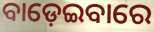
ବାଡ଼େଇବାରେ